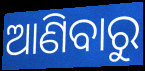
ଆଣିବାରୁ